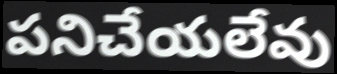
పనిచేయలేవు